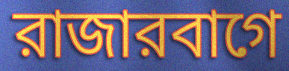
রাজারবাগে